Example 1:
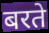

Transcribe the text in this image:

बरते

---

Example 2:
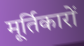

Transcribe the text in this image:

मूर्तिकारों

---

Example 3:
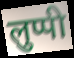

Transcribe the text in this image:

लुप्पी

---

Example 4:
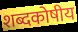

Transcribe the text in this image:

शब्दकोषीय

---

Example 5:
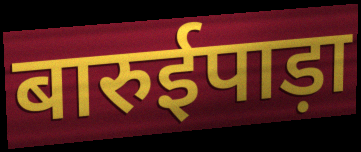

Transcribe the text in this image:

बारुईपाड़ा